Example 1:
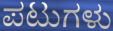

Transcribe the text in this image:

ಪಟುಗಳು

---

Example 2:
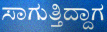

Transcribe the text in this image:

ಸಾಗುತ್ತಿದ್ದಾಗ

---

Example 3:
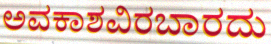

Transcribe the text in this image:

ಅವಕಾಶವಿರಬಾರದು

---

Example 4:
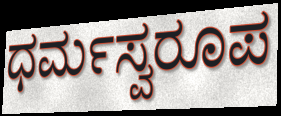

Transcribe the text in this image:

ಧರ್ಮಸ್ವರೂಪ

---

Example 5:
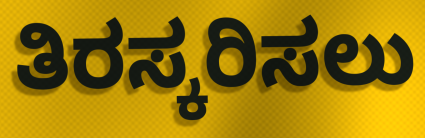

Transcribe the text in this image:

ತಿರಸ್ಕರಿಸಲು